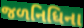
જળનિધિના